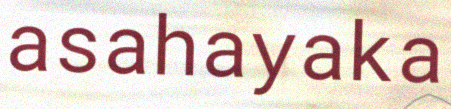
asahayaka